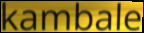
kambale